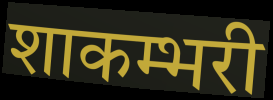
शाकम्भरी